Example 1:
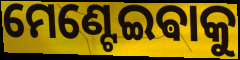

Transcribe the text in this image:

ମେଣ୍ଟେଇଵାକୁ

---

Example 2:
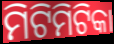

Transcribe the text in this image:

ମିଟିମିଟିକା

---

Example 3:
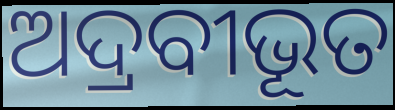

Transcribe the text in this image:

ଅଦ୍ରବୀଭୂତ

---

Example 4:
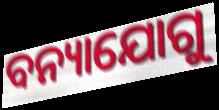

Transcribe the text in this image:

ବନ୍ୟାଯୋଗୁ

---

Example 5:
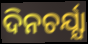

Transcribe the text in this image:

ଦିନଚର୍ଯ୍ଯା